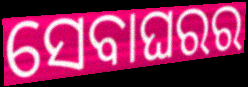
ସେବାଘରର